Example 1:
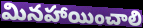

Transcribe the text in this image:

మినహాయించాలి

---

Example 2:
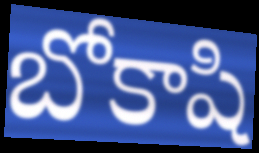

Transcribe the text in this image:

బోకాషి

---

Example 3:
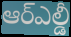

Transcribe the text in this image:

ఆర్ఎల్డీ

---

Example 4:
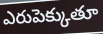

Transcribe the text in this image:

ఎరుపెక్కుతూ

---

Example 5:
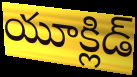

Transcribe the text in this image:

యూక్లిడ్